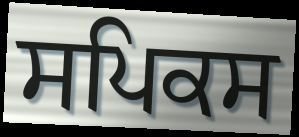
ਸਪਿਕਸ